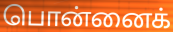
பொன்னைக்